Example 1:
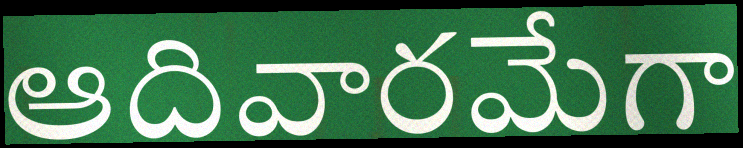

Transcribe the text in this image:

ఆదివారమేగా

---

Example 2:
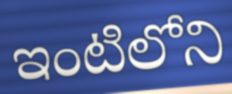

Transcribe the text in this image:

ఇంటిలోని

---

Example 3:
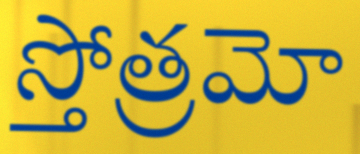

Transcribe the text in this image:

స్తోత్రమో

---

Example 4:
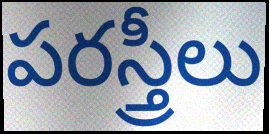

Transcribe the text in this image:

పరస్త్రీలు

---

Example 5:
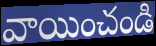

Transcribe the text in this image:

వాయించండి